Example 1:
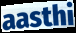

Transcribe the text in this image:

aasthi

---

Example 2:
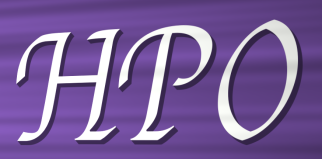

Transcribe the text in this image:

HPO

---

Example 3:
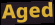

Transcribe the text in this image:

Aged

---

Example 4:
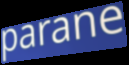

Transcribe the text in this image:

parane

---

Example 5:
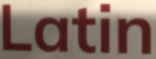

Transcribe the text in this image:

Latin